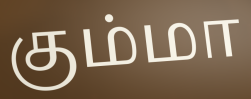
கும்மா